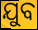
ଯୁବ